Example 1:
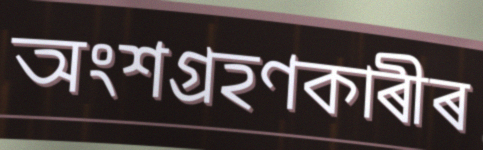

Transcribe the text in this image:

অংশগ্ৰহণকাৰীৰ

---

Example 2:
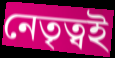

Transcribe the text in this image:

নেতৃত্বই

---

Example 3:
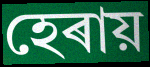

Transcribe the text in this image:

হেৰায়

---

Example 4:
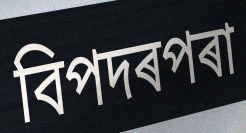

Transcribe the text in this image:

বিপদৰপৰা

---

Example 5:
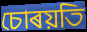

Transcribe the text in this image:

চোৰয়তি